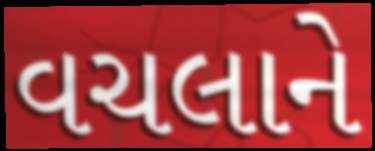
વચલાને